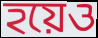
হয়েও